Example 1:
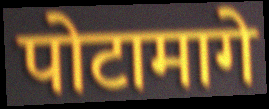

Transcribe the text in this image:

पोटामागे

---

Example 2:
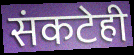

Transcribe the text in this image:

संकटेही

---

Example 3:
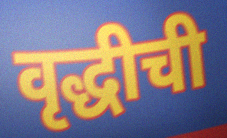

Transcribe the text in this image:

वृद्धीची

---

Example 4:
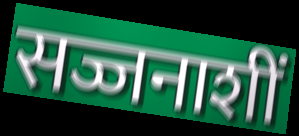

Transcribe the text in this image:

सज्जनाशीं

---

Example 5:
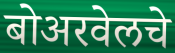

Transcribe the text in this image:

बोअरवेलचे